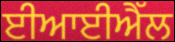
ਈਆਈਐੱਲ